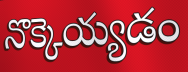
నొక్కెయ్యడం